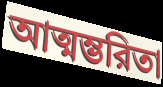
আত্মম্ভরিতা